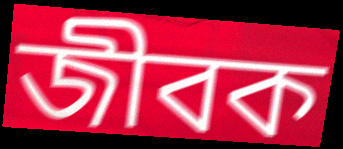
জীবক